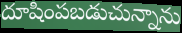
దూషింపబడుచున్నాను